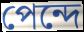
পেন্দে